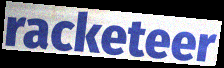
racketeer